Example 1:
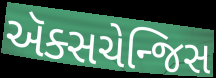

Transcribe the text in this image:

ઍક્સચેન્જિસ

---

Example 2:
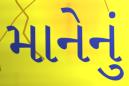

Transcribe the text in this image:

માનેનું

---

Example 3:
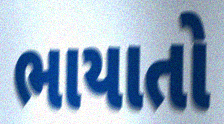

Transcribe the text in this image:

ભાયાતો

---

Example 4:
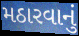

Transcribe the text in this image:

મઠારવાનું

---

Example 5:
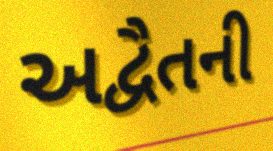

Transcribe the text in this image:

અદ્વૈતની